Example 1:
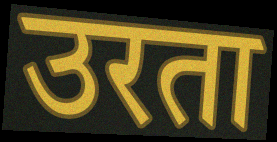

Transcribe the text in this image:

उरता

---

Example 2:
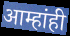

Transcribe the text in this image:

आम्हांही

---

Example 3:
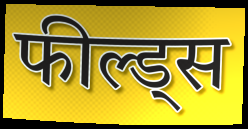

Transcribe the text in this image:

फील्ड्स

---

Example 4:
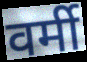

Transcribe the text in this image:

वर्मी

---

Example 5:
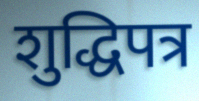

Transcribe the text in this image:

शुद्धिपत्र